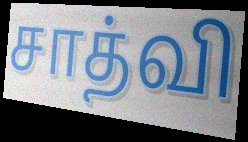
சாத்வி